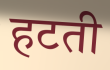
हटती